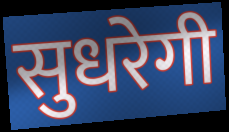
सुधरेगी